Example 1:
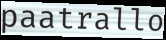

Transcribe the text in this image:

paatrallo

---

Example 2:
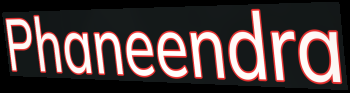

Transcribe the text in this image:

Phaneendra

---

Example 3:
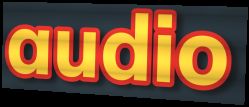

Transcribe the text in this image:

audio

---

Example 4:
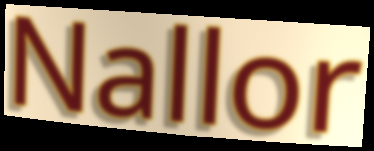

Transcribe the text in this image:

Nallor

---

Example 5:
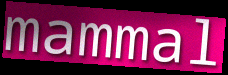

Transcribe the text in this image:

mammal